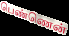
பெண்ணென்